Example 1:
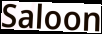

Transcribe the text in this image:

Saloon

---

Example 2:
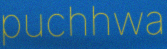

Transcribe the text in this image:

puchhwa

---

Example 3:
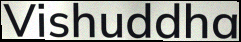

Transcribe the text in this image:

Vishuddha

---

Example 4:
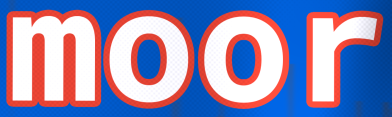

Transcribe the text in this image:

moor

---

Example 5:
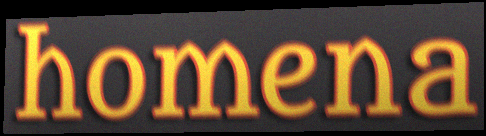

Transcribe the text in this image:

homena